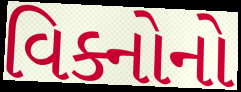
વિક્નોનો